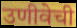
उणीवेची